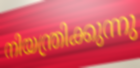
നിയന്ത്രിക്കുന്നു